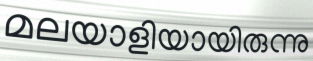
മലയാളിയായിരുന്നു